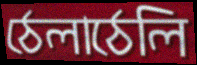
ঠেলাঠেলি